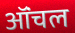
ऑंचल